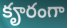
కౄరంగా